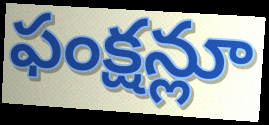
ఫంక్షన్లూ